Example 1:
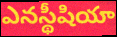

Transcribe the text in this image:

ఎనస్థీషియా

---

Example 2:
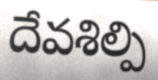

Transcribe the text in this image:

దేవశిల్పి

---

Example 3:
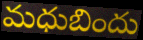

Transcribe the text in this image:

మధుబిందు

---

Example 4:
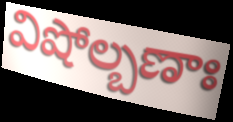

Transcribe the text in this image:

విషోల్బణాః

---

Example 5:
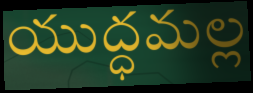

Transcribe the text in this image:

యుద్ధమల్ల